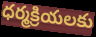
ధర్మక్రియలకు